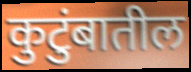
कुटुंबातील